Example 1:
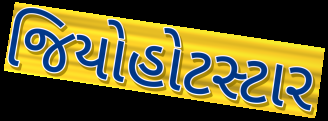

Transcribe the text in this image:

જિયોહોટસ્ટાર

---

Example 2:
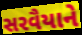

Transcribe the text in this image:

સરવૈયાને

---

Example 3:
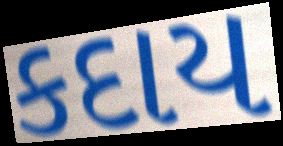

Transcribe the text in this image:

કદાય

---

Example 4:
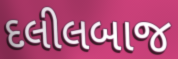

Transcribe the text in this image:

દલીલબાજ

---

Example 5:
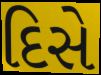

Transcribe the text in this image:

દિસે